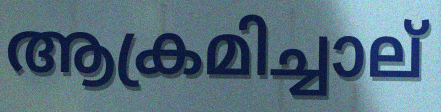
ആക്രമിച്ചാല്